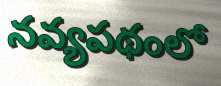
నవ్యపథంలో